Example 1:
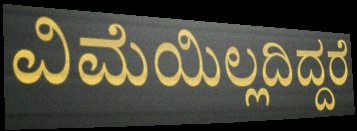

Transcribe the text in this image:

ವಿಮೆಯಿಲ್ಲದಿದ್ದರೆ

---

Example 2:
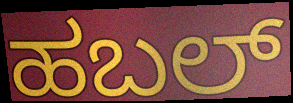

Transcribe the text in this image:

ಹಬಲ್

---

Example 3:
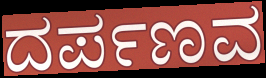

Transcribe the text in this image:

ದರ್ಪಣವ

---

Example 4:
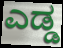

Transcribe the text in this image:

ಎಡ್ಡ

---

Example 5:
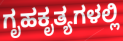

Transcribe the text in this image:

ಗೃಹಕೃತ್ಯಗಳಲ್ಲಿ